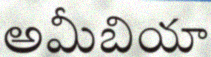
అమీబియా